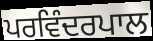
ਪਰਵਿੰਦਰਪਾਲ